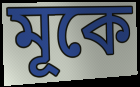
মূকে